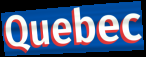
Quebec